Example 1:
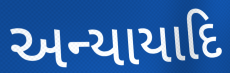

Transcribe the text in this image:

અન્યાયાદિ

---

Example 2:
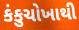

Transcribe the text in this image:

કંકુચોખાથી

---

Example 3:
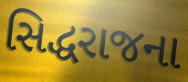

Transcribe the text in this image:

સિદ્ધરાજના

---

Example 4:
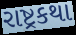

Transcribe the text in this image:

રાષ્ટ્રકથા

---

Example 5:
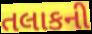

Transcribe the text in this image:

તલાકની